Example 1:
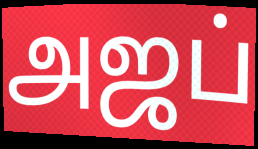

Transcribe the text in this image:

அஜப்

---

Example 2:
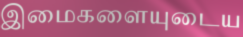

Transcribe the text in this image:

இமைகளையுடைய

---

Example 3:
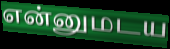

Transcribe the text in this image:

என்னுமடய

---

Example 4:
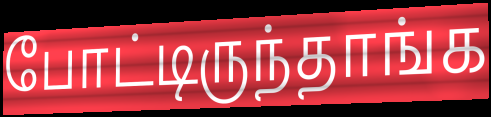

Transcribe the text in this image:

போட்டிருந்தாங்க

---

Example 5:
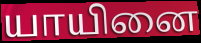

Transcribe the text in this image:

யாயினை